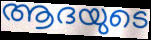
ആദയുടെ